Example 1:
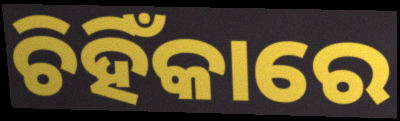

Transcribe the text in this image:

ଚିହିଁକାରେ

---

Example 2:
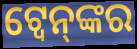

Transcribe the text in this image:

ଟ୍ୱେନ୍‌ଙ୍କର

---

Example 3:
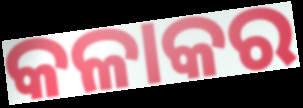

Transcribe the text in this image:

କଳାକର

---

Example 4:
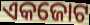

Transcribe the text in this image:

ଏକଜୋଟ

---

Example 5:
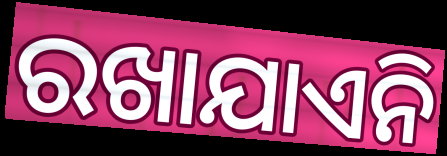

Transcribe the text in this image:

ରଖାଯାଏନି